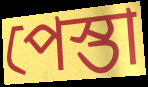
পেস্তা